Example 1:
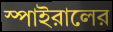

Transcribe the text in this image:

স্পাইরালের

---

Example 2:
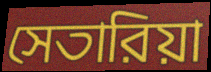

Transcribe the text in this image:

সেতারিয়া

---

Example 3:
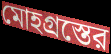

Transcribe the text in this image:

মোহগ্রস্তের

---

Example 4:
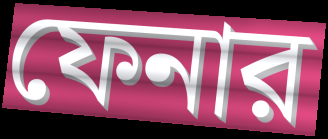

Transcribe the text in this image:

ফেনার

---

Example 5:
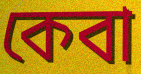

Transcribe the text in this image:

কেবা